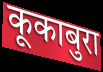
कूकाबुरा